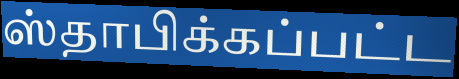
ஸ்தாபிக்கப்பட்ட